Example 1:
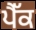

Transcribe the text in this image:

ਪੈੱਕ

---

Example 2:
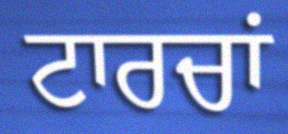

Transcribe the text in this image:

ਟਾਰਚਾਂ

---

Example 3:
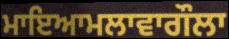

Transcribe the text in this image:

ਮਾਇਆਮਲਾਵਾਗੌਲਾ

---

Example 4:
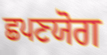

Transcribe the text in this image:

ਛਪਣਯੋਗ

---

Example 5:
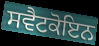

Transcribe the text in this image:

ਸਵੈਟਕੋਇਨ